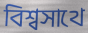
বিশ্বসাথে